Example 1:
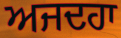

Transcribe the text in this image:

ਅਜਦਹਾ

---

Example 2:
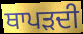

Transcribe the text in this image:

ਥਾਪੜਦੀ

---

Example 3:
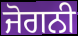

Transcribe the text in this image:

ਜੋਗਨੀ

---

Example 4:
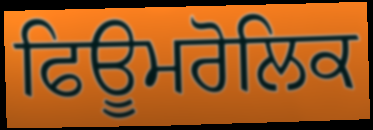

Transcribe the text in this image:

ਫਿਊਮਰੋਲਿਕ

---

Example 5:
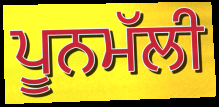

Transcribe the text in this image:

ਪੂਨਮੱਲੀ